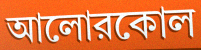
আলোরকোল